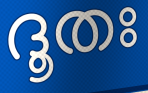
ദൂതഃ